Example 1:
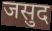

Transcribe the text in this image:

जसुद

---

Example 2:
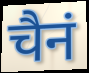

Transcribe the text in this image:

चैनं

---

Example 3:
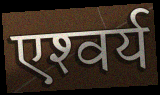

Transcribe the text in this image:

एश्‍वर्य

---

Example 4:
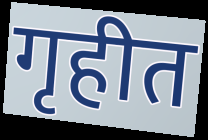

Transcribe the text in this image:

गृहीत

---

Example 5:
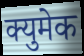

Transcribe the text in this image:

क्युमेक